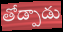
తోడ్పాడు